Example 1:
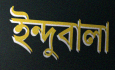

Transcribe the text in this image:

ইন্দুবালা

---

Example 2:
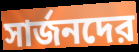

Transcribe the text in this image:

সার্জনদের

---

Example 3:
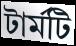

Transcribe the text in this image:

টার্মটি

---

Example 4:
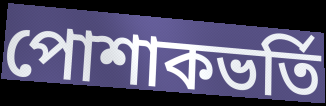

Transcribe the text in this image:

পোশাকভর্তি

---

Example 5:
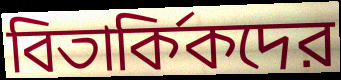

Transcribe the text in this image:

বিতার্কিকদের